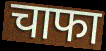
चाफा